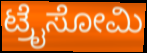
ಟ್ರೈಸೋಮಿ